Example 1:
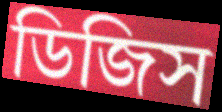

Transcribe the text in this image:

ডিজিস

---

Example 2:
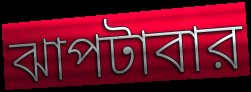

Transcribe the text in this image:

ঝাপটাবার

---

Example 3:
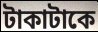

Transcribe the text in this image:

টাকাটাকে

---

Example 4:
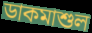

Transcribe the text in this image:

ডাকমাশুল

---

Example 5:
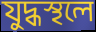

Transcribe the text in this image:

যুদ্ধস্থলে